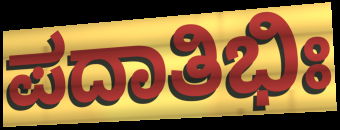
ಪದಾತಿಭಿಃ